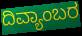
ದಿವ್ಯಾಂಬರ